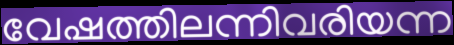
വേഷത്തിലന്നിവരിയന്ന